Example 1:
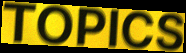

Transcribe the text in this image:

TOPICS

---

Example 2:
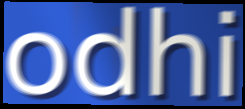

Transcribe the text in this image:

odhi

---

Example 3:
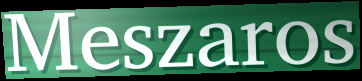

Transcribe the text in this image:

Meszaros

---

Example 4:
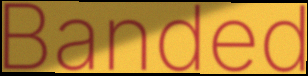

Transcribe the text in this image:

Banded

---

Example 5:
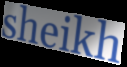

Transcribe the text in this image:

sheikh